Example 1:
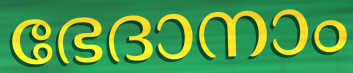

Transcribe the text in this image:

ഭേദാനാം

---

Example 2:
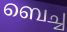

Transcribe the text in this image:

ബെച്ച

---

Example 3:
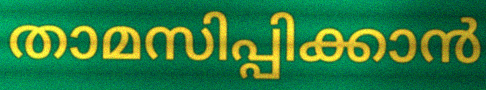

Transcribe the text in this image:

താമസിപ്പിക്കാൻ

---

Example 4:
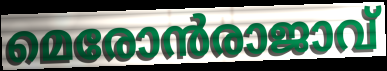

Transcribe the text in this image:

മെരോൻരാജാവ്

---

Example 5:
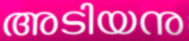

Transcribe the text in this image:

അടിയനു